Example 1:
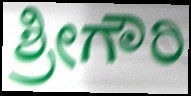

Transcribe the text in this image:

ಶ್ರೀಗೌರಿ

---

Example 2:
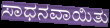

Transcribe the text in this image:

ಸಾಧನವಾಯಿತು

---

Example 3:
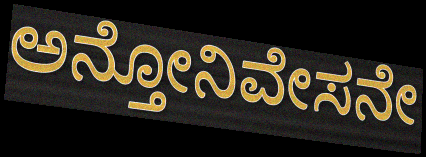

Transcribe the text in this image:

ಅನ್ತೋನಿವೇಸನೇ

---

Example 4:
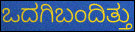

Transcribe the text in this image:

ಒದಗಿಬಂದಿತ್ತು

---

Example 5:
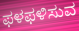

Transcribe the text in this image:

ಫಳಫಳಿಸುವ